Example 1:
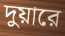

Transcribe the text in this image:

দুয়ারে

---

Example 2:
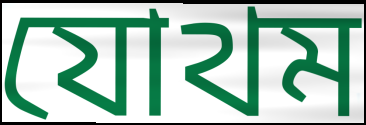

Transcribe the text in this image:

যোথম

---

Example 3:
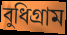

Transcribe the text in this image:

বুধিগ্রাম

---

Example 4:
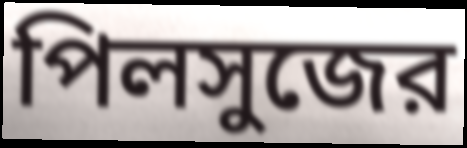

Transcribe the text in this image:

পিলসুজের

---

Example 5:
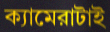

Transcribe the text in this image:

ক্যামেরাটাই